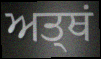
ਅਤ੍ਥਂ